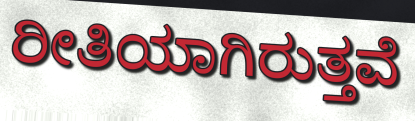
ರೀತಿಯಾಗಿರುತ್ತವೆ